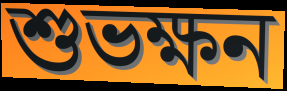
শুভক্ষন